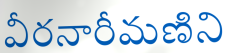
వీరనారీమణిని